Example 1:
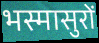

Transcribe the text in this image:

भस्मासुरों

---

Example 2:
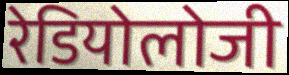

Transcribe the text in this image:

रेडियोलोजी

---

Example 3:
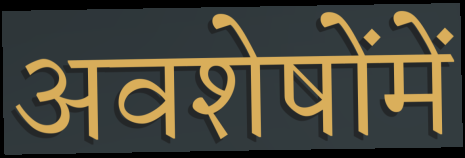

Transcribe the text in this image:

अवशेषोंमें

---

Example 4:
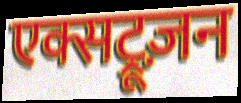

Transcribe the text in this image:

एक्सट्रूज़न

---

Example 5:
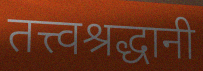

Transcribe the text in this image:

तत्त्वश्रद्धानी